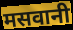
मसवानी